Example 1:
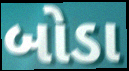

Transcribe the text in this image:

બોડા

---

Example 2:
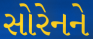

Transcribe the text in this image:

સોરેનને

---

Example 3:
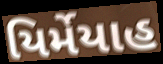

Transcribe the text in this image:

યિર્મેયાહ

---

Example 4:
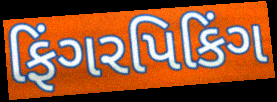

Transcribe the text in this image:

ફિંગરપિકિંગ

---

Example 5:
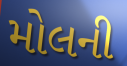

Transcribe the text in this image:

મોલની